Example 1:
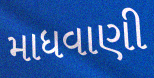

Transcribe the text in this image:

માધવાણી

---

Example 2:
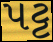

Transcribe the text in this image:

પટ્ટ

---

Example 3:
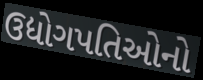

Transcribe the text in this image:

ઉદ્યોગપતિઓનો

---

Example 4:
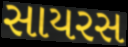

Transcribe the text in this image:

સાયરસ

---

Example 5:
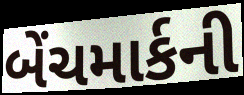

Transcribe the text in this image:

બેંચમાર્કની